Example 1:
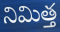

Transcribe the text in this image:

నిమిత్త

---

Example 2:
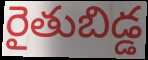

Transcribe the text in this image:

రైతుబిడ్డ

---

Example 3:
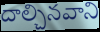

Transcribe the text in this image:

దాల్చినవాని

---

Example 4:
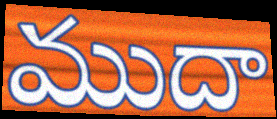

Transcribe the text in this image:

ముదా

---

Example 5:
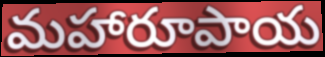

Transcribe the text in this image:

మహారూపాయ